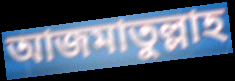
আজমাতুল্লাহ